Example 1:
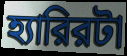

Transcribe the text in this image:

হ্যারিরটা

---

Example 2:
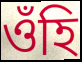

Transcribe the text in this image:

ওঁহি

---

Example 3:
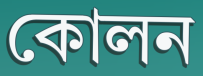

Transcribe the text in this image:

কোলন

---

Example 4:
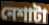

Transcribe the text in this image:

নেশাটা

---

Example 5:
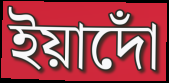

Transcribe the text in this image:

ইয়াদোঁ